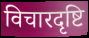
विचारदृष्टि